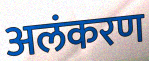
अलंकरण